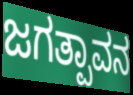
ಜಗತ್ಪಾವನ